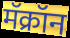
मॅक्रॉन